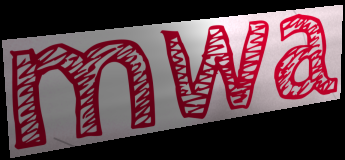
mwa